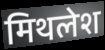
मिथलेश